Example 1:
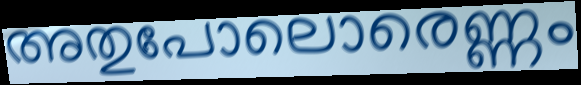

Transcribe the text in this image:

അതുപോലൊരെണ്ണം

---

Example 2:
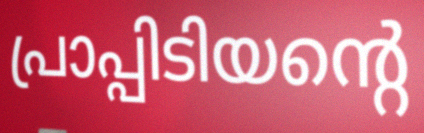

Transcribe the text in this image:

പ്രാപ്പിടിയന്റെ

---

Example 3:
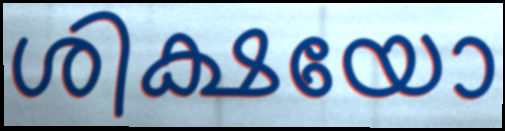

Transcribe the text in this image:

ശിക്ഷയോ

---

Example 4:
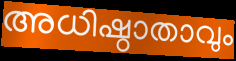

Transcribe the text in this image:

അധിഷ്ഠാതാവും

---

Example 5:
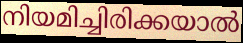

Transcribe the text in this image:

നിയമിച്ചിരിക്കയാൽ